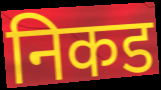
निकड